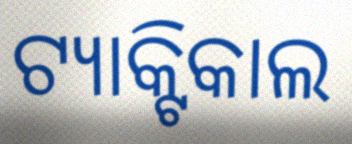
ଟ୍ୟାକ୍ଟିକାଲ